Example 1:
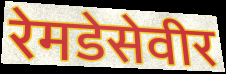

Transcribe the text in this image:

रेमडेसेवीर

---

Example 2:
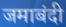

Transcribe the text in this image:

जमाबंदी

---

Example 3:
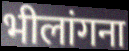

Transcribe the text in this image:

भीलांगना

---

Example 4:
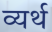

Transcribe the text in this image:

व्यर्थ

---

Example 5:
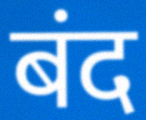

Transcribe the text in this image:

बंद